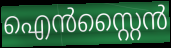
ഐൻസ്റ്റൈൻ